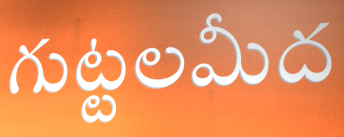
గుట్టలమీద